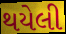
થયેલી